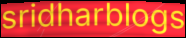
sridharblogs